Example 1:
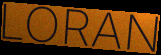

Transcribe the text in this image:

LORAN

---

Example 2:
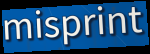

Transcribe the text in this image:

misprint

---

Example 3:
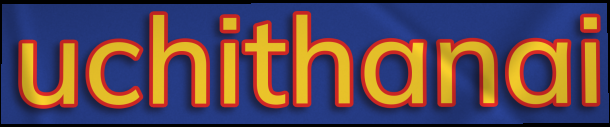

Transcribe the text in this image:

uchithanai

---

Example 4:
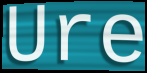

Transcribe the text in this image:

Ure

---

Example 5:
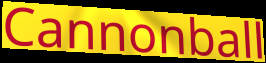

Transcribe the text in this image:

Cannonball